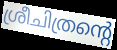
ശ്രീചിത്രന്റെ